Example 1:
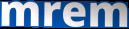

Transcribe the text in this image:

mrem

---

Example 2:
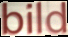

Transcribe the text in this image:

bild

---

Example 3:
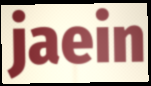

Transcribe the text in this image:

jaein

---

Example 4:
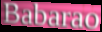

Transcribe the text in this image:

Babarao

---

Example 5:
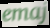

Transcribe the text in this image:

emaj